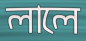
লালে